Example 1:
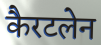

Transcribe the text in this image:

कैरटलेन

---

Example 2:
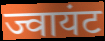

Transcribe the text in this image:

ज्वायंट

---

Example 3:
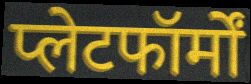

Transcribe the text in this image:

प्लेटफॉर्मों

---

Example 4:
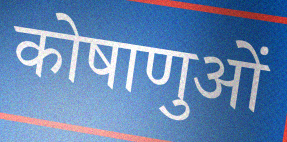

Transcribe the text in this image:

कोषाणुओं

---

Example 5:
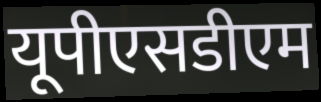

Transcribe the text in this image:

यूपीएसडीएम